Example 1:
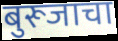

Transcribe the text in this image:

बुरूजाचा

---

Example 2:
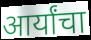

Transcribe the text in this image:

आर्यांचा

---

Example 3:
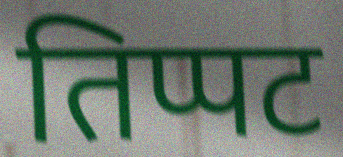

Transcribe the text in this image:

तिप्पट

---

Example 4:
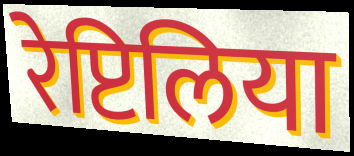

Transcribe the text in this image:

रेप्टिलिया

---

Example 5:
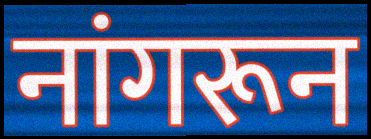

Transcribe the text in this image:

नांगरून